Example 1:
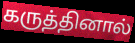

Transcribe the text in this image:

கருத்தினால்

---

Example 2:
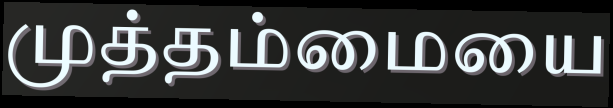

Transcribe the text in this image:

முத்தம்மையை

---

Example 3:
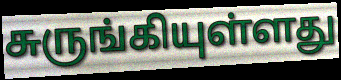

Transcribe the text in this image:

சுருங்கியுள்ளது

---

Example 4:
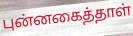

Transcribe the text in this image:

புன்னகைத்தாள்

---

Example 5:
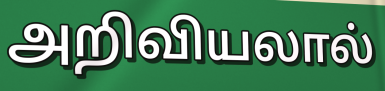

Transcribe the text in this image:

அறிவியலால்